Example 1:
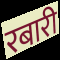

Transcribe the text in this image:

रबारी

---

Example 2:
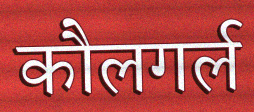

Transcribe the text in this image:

कौलगर्ल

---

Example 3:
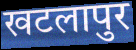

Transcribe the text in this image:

खटलापुर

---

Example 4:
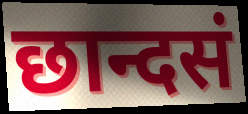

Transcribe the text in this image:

छान्दसं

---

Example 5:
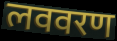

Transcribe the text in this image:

लववरण